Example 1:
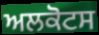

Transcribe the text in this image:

ਅਲਕੋਟਸ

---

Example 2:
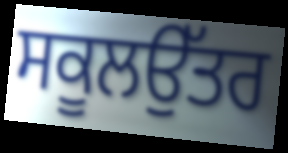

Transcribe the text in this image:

ਸਕੂਲਉੱਤਰ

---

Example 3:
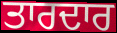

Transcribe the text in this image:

ਤਾਰਦਾਰ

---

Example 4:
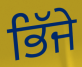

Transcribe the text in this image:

ਭਿੱਜੇ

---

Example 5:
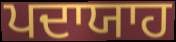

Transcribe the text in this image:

ਪਦਾਯਾਹ